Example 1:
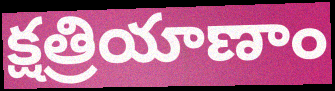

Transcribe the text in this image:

క్షత్రియాణాం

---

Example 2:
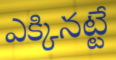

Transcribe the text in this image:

ఎక్కినట్టే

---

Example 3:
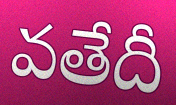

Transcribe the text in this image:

వతేదీ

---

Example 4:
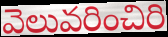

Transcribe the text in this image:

వెలువరించిరి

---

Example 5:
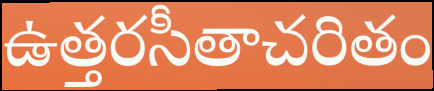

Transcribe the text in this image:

ఉత్తరసీతాచరితం